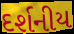
દર્શનીય